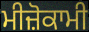
ਮੀਜ਼ੋਕਾਮੀ